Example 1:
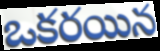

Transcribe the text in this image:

ఒకరయిన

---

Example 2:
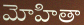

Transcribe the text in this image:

మోహితా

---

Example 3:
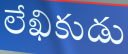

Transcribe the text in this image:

లేఖికుడు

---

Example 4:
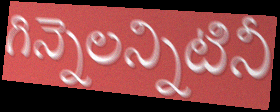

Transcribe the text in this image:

గిన్నెలన్నిటినీ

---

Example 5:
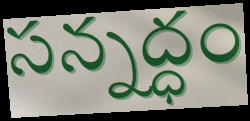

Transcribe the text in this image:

సన్నద్ధం